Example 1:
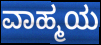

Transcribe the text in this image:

ವಾಹ್ಮಯ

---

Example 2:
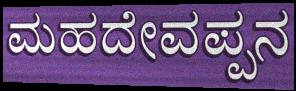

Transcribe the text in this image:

ಮಹದೇವಪ್ಪನ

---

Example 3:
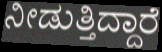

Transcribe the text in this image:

ನೀಡುತ್ತಿದ್ದಾರೆ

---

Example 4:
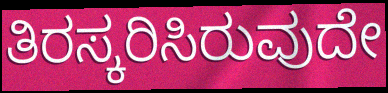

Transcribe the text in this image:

ತಿರಸ್ಕರಿಸಿರುವುದೇ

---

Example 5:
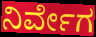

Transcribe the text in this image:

ನಿರ್ವೇಗ